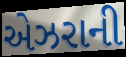
એઝરાની